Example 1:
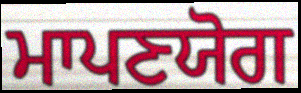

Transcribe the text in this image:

ਮਾਪਣਯੋਗ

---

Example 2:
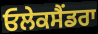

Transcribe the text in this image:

ਓਲੇਕਸੈਂਡਰਾ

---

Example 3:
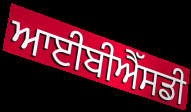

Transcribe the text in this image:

ਆਈਬੀਐੱਸਡੀ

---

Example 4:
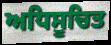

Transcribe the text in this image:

ਅਧਿਸੂਚਿਤ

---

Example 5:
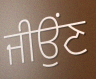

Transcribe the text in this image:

ਜੀਉਂਣ